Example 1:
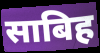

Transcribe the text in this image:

साबिह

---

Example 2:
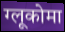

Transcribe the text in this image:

ग्‍लूकोमा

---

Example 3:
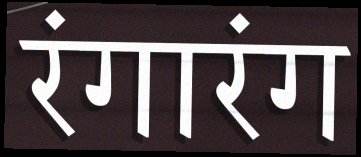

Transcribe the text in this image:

रंगारंग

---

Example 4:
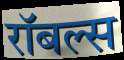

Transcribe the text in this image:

रॉबल्स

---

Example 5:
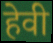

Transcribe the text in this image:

हेवी